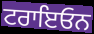
ਟਰਾਇਓਨ